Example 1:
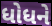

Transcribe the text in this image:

ધોધને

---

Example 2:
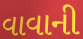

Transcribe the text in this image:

વાવાની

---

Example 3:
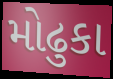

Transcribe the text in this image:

મોઢુકા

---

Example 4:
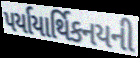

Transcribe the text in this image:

પર્યાયાર્થિકનયની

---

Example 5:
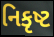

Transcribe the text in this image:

નિકૃષ્ટ